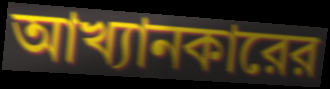
আখ্যানকারের